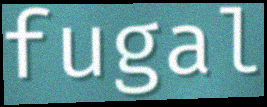
fugal